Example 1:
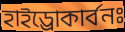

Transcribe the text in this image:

হাইড্রোকার্বনঃ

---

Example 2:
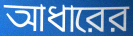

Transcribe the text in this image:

আধারের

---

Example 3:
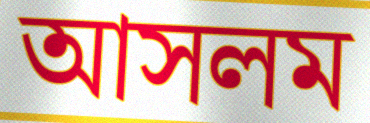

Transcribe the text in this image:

আসলম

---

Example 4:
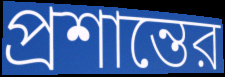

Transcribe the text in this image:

প্রশান্তের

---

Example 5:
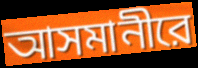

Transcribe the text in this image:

আসমানীরে